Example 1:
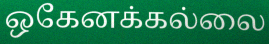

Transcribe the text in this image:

ஒகேனக்கல்லை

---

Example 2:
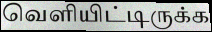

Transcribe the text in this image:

வெளியிட்டிருக்க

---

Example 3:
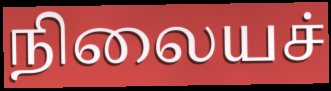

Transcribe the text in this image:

நிலையச்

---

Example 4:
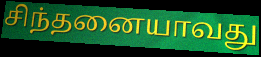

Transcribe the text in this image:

சிந்தனையாவது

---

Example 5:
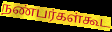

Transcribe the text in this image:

நண்பர்கள்கூட